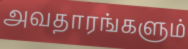
அவதாரங்களும்